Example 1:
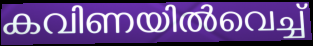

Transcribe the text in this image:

കവിണയിൽവെച്ച്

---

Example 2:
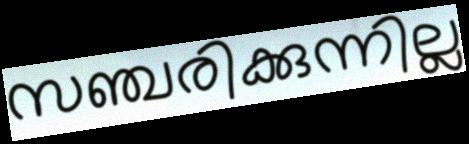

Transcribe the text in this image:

സഞ്ചരിക്കുന്നില്ല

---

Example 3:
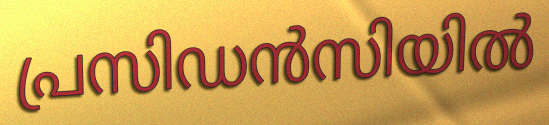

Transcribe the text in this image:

പ്രസിഡൻസിയിൽ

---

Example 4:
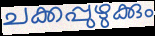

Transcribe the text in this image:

ചക്കപ്പുഴുക്കും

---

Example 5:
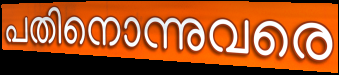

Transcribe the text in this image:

പതിനൊന്നുവരെ